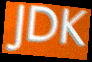
JDK